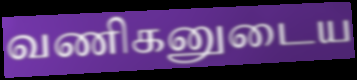
வணிகனுடைய